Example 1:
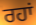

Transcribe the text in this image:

ਰਹਾਂ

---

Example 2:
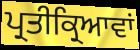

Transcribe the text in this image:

ਪ੍ਰਤੀਕ੍ਰਿਆਵਾਂ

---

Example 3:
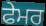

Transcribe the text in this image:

ਫੇਮਰ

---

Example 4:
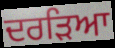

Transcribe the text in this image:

ਦਰੜਿਆ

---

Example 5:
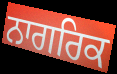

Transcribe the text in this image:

ਨਾਗਰਿਕ